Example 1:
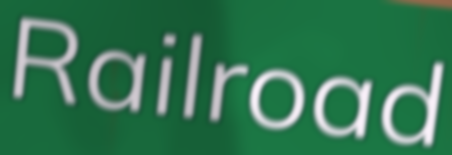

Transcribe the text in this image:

Railroad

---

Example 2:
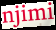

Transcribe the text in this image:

njimi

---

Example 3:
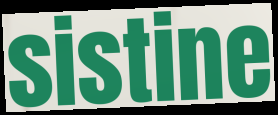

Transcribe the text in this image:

sistine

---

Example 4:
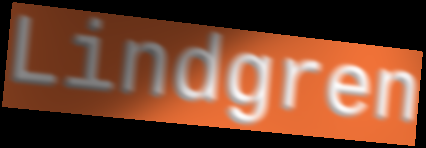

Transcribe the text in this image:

Lindgren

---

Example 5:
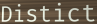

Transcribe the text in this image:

Distict